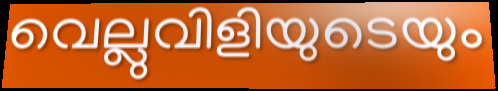
വെല്ലുവിളിയുടെയും